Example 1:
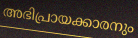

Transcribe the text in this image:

അഭിപ്രായക്കാരനും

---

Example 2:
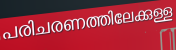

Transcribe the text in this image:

പരിചരണത്തിലേക്കുള്ള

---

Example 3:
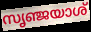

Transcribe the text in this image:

സൃഞ്ജയാശ്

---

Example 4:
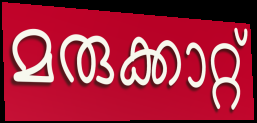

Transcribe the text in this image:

മരുക്കാറ്റ്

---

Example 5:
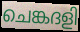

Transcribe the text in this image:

ചെങ്കദളി